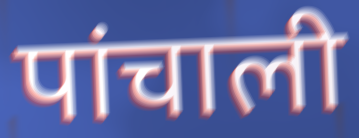
पांचाली